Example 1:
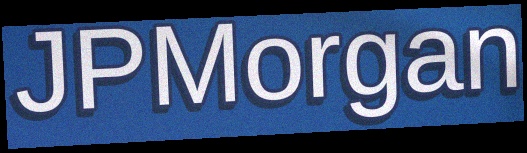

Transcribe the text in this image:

JPMorgan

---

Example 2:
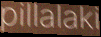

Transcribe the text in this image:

pillalaki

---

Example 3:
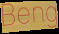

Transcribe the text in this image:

Beng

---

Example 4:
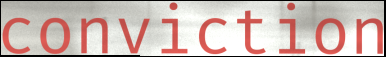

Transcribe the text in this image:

conviction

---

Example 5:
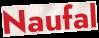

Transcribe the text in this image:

Naufal